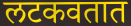
लटकवतात